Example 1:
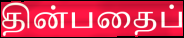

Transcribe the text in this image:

தின்பதைப்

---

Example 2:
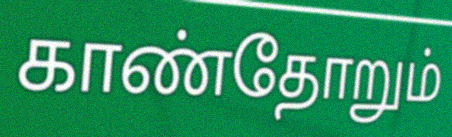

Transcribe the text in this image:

காண்தோறும்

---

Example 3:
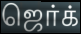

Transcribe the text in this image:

ஜெர்க்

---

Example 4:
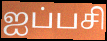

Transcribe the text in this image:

ஐப்பசி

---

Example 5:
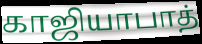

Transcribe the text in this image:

காஜியாபாத்